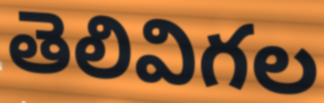
తెలివిగల